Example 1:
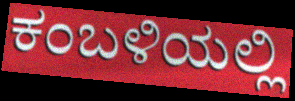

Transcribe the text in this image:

ಕಂಬಳಿಯಲ್ಲಿ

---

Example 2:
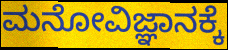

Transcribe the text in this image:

ಮನೋವಿಜ್ಞಾನಕ್ಕೆ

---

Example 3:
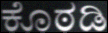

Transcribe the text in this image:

ಕೊಠಡಿ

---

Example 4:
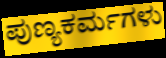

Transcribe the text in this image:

ಪುಣ್ಯಕರ್ಮಗಳು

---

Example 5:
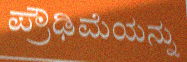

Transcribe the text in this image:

ಪ್ರೌಢಿಮೆಯನ್ನು